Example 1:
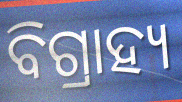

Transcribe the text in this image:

ବିଗ୍ରାହ୍ୟ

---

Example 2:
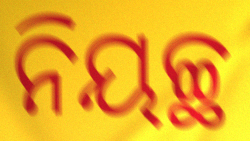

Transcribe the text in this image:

ନିୟଚ୍ଛ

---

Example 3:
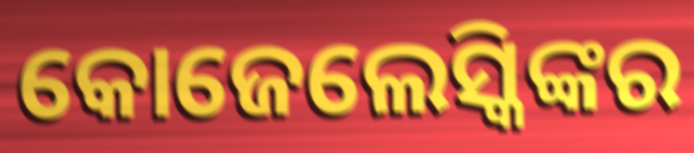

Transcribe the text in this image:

କୋଜେଲେସ୍କିଙ୍କର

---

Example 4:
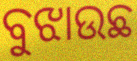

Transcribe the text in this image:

ବୁଝାଉଛ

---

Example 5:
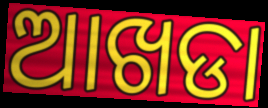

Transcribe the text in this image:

ଆଖଡା